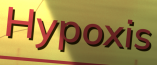
Hypoxis